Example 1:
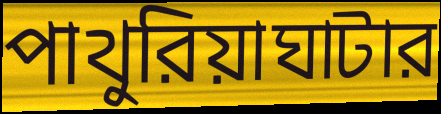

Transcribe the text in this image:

পাথুরিয়াঘাটার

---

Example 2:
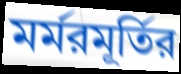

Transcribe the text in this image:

মর্মরমূর্তির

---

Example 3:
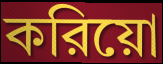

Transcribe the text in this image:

করিয়ো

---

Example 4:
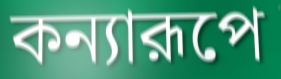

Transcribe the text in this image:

কন্যারূপে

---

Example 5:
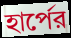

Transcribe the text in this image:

হার্পের